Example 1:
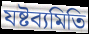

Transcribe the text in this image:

যষ্টব্যমিতি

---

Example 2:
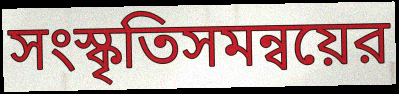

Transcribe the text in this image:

সংস্কৃতিসমন্বয়ের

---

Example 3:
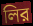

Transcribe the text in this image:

লির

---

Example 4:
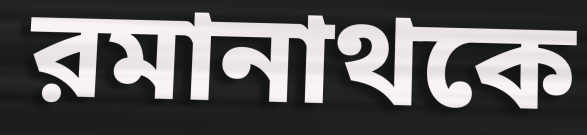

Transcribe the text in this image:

রমানাথকে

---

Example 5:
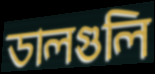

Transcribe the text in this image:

ডালগুলি